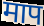
माप